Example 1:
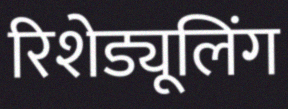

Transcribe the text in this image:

रिशेड्यूलिंग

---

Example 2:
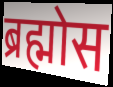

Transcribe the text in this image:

ब्रह्मोस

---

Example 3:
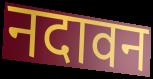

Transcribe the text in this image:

नदावन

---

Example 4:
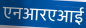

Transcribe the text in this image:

एनआरएआई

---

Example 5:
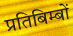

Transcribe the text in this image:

प्रतिबिम्बों